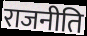
राजनीति